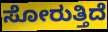
ಸೋರುತ್ತಿದೆ